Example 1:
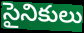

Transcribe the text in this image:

సైనికులు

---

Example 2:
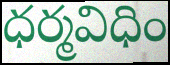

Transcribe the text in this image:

ధర్మవిధిం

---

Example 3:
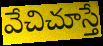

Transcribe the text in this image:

వేచిచూస్తే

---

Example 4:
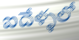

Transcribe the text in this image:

ఐదేళ్ళలో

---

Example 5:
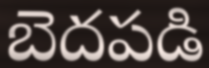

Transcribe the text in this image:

బెదపడి